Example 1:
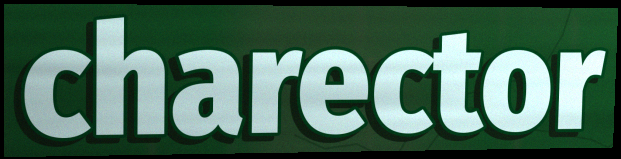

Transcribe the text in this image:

charector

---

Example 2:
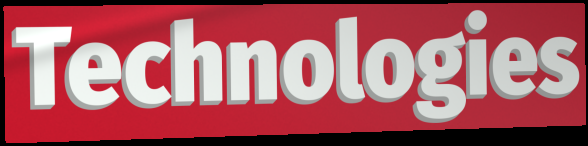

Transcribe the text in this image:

Technologies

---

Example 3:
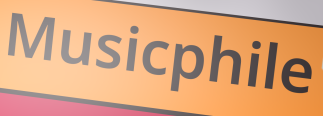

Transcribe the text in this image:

Musicphile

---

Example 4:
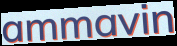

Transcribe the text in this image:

ammavin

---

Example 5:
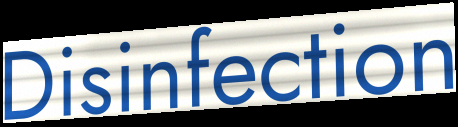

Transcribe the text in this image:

Disinfection